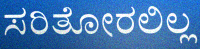
ಸರಿತೋರಲಿಲ್ಲ